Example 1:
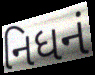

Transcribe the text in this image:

નિધનં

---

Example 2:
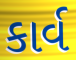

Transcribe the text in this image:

કાર્વ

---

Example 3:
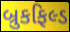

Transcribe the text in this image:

બ્રુકફિલ્ડ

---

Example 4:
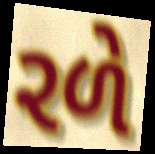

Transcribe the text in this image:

રળે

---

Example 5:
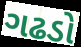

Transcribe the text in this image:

ગઢડો